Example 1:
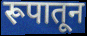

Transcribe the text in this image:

रूपातून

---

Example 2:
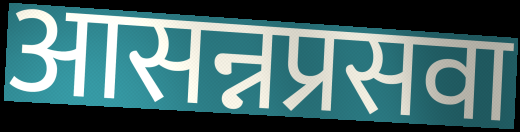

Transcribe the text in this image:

आसन्नप्रसवा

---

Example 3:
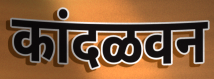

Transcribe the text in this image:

कांदळवन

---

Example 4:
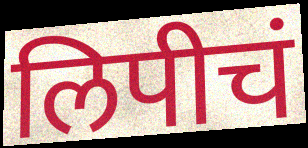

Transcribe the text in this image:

लिपीचं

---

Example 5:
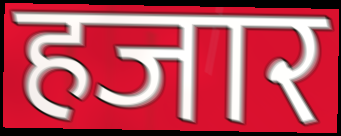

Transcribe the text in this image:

हजार